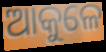
ଆକୁଳେ